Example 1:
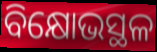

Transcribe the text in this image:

ବିକ୍ଷୋଭସ୍ଥଳ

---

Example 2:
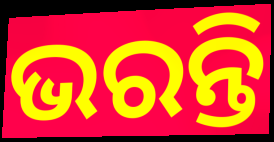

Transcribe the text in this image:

ଭରନ୍ତି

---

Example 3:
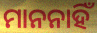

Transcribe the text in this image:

ମାନନାହିଁ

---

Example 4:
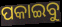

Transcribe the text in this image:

ପକାଇବୁ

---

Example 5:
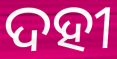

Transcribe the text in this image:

ଦହୀ